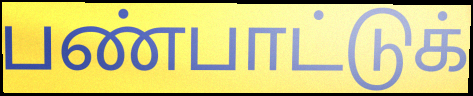
பண்பாட்டுக்